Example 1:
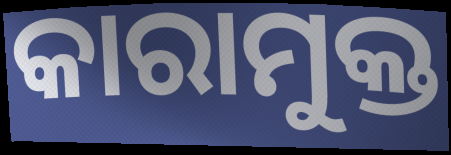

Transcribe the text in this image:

କାରାମୁକ୍ତ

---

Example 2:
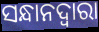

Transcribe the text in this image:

ସନ୍ଧାନଦ୍ୱାରା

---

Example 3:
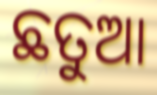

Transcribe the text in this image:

ଛତୁଆ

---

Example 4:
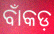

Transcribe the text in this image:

ବାଁକଡ଼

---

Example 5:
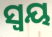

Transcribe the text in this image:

ସ୍ୱୟ